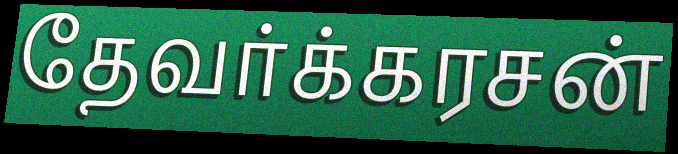
தேவர்க்கரசன்